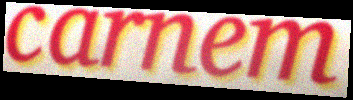
carnem